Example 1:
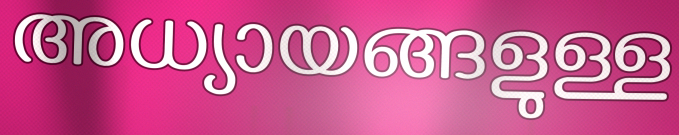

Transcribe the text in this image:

അധ്യായങ്ങളുള്ള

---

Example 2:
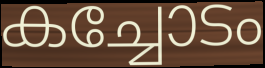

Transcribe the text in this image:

കച്ചോടം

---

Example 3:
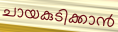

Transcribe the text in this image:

ചായകുടിക്കാൻ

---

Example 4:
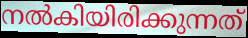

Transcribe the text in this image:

നൽകിയിരിക്കുന്നത്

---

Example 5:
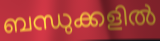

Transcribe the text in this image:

ബന്ധുക്കളിൽ